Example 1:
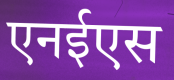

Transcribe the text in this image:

एनईएस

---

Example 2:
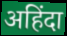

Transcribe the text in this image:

अहिंदा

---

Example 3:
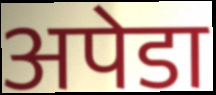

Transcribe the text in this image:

अपेडा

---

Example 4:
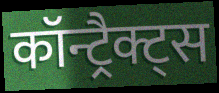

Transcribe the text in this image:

कॉन्ट्रैक्ट्स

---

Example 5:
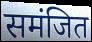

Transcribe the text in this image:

समंजित